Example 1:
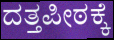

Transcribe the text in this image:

ದತ್ತಪೀಠಕ್ಕೆ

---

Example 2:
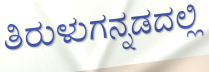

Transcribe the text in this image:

ತಿರುಳುಗನ್ನಡದಲ್ಲಿ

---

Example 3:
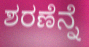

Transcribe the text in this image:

ಶರಣೆನ್ನೆ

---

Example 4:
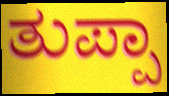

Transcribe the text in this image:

ತುಪ್ಪಾ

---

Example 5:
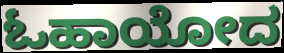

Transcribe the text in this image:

ಓಹಾಯೋದ